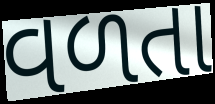
વળતા